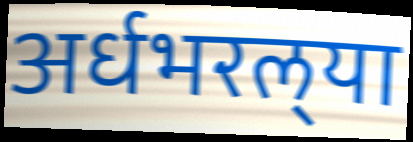
अर्धभरल्या